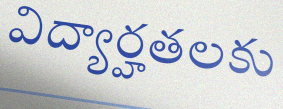
విద్యార్హతలకు